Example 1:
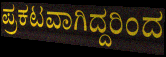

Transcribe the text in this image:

ಪ್ರಕಟವಾಗಿದ್ದರಿಂದ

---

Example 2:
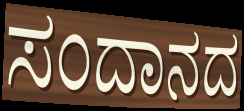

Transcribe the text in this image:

ಸಂದಾನದ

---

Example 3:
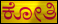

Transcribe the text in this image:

ಕೋತಿ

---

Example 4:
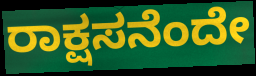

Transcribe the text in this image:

ರಾಕ್ಷಸನೆಂದೇ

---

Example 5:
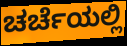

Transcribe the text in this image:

ಚರ್ಚೆಯಲ್ಲಿ